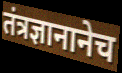
तंत्रज्ञानानेच